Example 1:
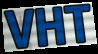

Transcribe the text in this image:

VHT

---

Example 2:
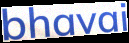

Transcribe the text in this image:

bhavai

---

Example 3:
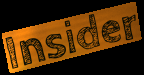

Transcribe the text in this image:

Insider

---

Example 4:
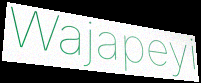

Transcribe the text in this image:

Wajapeyi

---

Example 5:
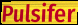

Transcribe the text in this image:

Pulsifer